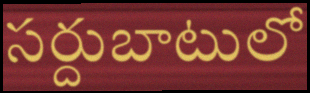
సర్దుబాటులో